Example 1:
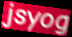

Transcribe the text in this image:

jsyog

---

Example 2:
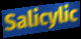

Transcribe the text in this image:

Salicylic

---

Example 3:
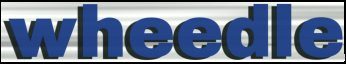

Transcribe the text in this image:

wheedle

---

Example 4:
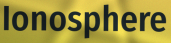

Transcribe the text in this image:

Ionosphere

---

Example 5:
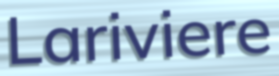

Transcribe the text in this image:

Lariviere